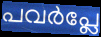
പവർപ്ലേ